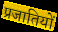
प्रजातियों